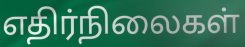
எதிர்நிலைகள்